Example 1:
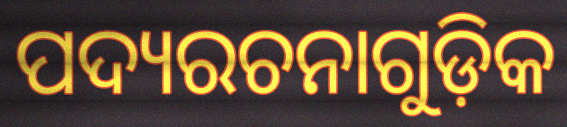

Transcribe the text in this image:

ପଦ୍ୟରଚନାଗୁଡ଼ିକ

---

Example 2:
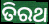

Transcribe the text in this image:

ତିରଥ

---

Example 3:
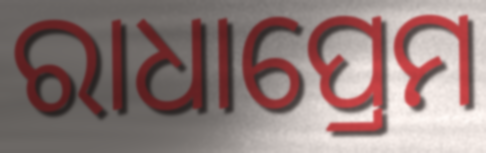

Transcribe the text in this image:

ରାଧାପ୍ରେମ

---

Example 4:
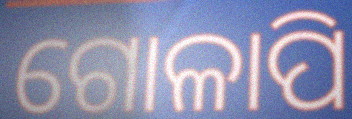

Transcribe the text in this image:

ଗୋଳାପି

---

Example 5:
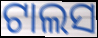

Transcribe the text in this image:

ଟାଲସ